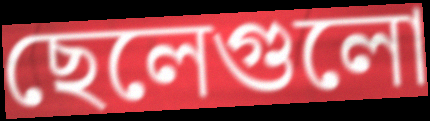
ছেলেগুলো